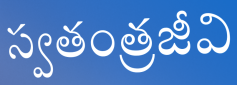
స్వతంత్రజీవి